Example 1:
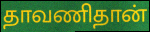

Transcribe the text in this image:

தாவணிதான்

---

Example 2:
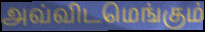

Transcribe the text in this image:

அவ்விடமெங்கும்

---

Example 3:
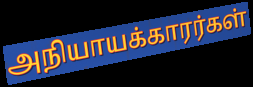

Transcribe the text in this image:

அநியாயக்காரர்கள்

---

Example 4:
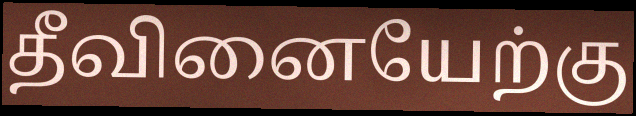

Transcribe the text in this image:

தீவினையேற்கு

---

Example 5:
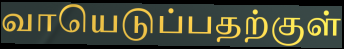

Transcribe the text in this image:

வாயெடுப்பதற்குள்